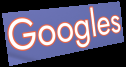
Googles